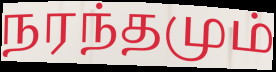
நரந்தமும்